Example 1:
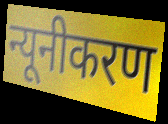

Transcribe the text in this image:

न्यूनीकरण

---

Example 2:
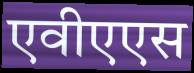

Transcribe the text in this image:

एवीएएस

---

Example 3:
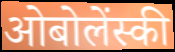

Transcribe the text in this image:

ओबोलेंस्की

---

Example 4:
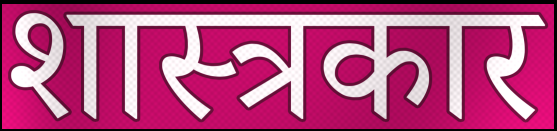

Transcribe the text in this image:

शास्त्रकार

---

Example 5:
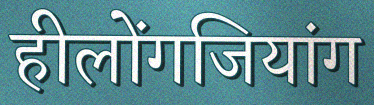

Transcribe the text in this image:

हीलोंगजियांग